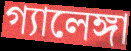
গ্যালেঙ্গা